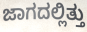
ಜಾಗದಲ್ಲಿತ್ತು